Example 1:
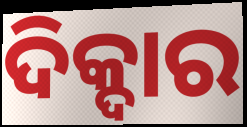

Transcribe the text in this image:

ଦିକ୍ଦାର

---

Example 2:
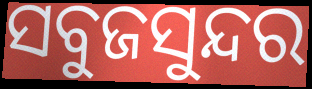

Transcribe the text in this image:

ସବୁଜସୁନ୍ଦର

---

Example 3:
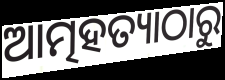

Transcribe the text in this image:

ଆତ୍ମହତ୍ୟାଠାରୁ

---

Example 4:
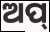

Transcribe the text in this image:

ଅପ୍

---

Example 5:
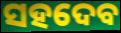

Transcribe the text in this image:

ସହଦେବ